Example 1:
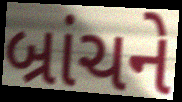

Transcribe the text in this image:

બ્રાંચને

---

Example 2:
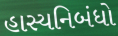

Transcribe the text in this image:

હાસ્યનિબંધો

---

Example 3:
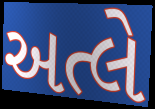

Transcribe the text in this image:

અત્લે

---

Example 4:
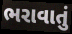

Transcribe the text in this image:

ભરાવાતું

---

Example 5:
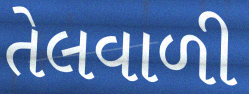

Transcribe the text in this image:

તેલવાળી